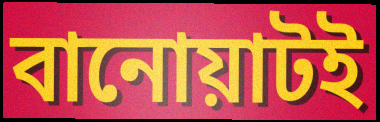
বানোয়াটই